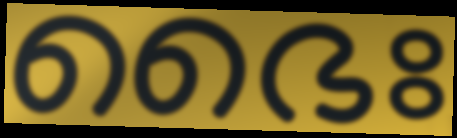
ഭൈഃ